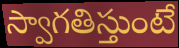
స్వాగతిస్తుంటే